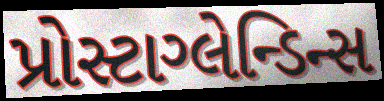
પ્રોસ્ટાગ્લેન્ડિન્સ